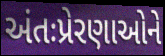
અંતઃપ્રેરણાઓને